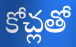
కోచ్లతో